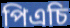
পিএচি